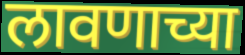
लावणाच्या